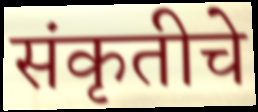
संकृतीचे